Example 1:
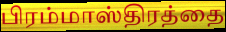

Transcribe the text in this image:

பிரம்மாஸ்திரத்தை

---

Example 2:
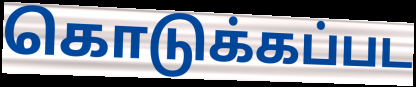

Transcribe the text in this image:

கொடுக்கப்பட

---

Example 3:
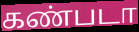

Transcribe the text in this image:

கண்படா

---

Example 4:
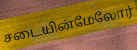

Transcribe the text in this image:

சடையின்மேலோர்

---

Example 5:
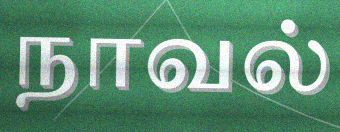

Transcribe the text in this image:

நாவல்